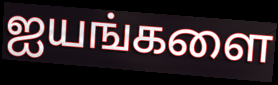
ஐயங்களை